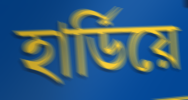
হাৰ্ডিয়ে